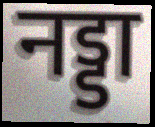
नड्डा